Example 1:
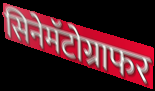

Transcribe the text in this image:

सिनेमॅटोग्राफर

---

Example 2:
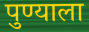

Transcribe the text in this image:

पुण्याला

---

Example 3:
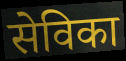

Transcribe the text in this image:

सेविका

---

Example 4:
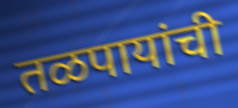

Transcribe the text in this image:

तळपायांची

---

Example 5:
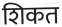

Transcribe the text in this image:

शिकत